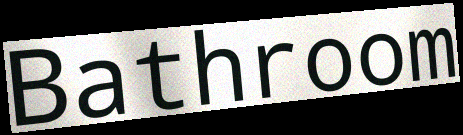
Bathroom